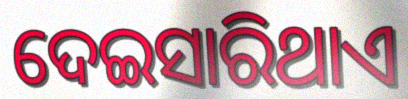
ଦେଇସାରିଥାଏ